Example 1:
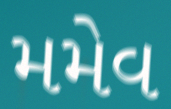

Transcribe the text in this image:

મમેવ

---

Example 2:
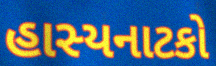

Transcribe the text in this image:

હાસ્યનાટકો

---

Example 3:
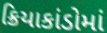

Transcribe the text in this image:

ક્રિયાકાંડોમાં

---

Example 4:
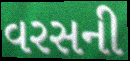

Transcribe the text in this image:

વરસની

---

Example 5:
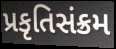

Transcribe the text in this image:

પ્રકૃતિસંક્રમ